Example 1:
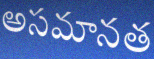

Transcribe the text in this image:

అసమానత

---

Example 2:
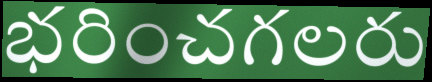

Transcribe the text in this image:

భరించగలరు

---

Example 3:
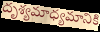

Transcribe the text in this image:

దృశ్యమాధ్యమానికి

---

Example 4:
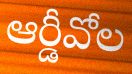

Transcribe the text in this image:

ఆర్డీవోల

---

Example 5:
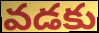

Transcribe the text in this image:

వడకు